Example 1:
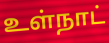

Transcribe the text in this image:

உள்நாட்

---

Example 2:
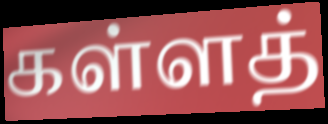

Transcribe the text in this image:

கள்ளத்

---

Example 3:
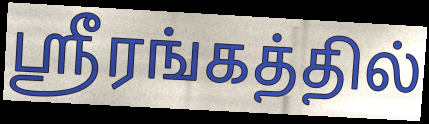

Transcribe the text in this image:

ஸ்ரீரங்கத்தில்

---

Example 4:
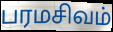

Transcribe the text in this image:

பரமசிவம்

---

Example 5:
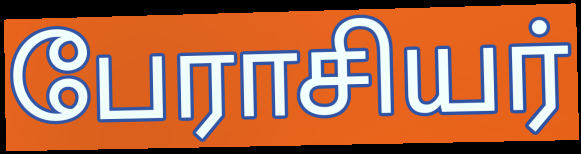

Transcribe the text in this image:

பேராசியர்